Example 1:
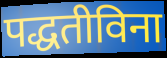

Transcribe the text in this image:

पद्धतीविना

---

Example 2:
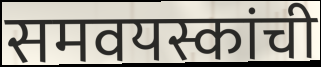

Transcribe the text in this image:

समवयस्कांची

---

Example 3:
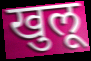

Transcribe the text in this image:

खुलू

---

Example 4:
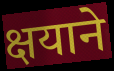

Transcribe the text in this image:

क्षयाने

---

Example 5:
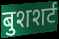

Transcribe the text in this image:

बुशशर्ट